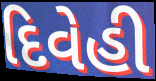
દિવેહી